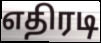
எதிரடி